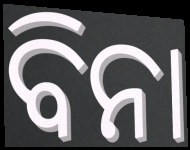
ବିନା